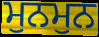
ਮੁਨਮੁਨ